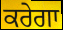
ਕਰੇਗਾ